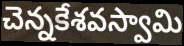
చెన్నకేశవస్వామి